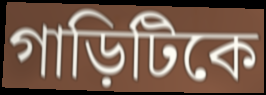
গাড়িটিকে